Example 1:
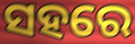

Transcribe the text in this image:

ସହରେ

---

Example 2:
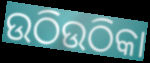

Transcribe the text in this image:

ଉଠିଉଠିକା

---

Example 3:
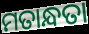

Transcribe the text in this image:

ମତାନ୍ଧତା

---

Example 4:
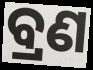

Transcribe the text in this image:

ବ୍ରଣ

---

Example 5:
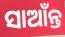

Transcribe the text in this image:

ସାଆଁନ୍ତ